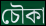
চৌকা